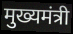
मुख्यमंत्री